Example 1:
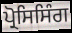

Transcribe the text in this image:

ਪ੍ਰੋਸਿਸਿੰਗ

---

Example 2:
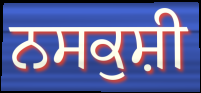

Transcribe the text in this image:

ਨਸਕੁਸ਼ੀ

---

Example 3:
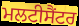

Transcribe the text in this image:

ਮਲਟੀਸੈਂਟਰ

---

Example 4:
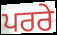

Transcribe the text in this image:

ਪਰਰੇ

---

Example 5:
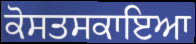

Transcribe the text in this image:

ਕੋਸਤਸਕਾਇਆ